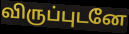
விருப்புடனே